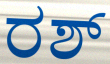
ರಶ್